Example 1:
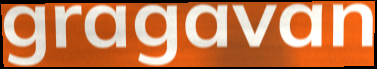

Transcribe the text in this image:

gragavan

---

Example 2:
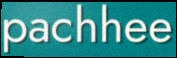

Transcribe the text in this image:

pachhee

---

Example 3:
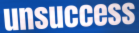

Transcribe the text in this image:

unsuccess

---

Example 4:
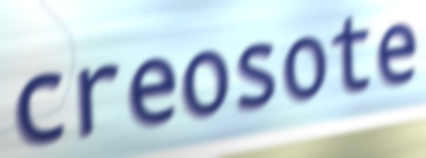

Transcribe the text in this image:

creosote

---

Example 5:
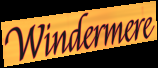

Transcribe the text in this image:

Windermere